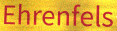
Ehrenfels